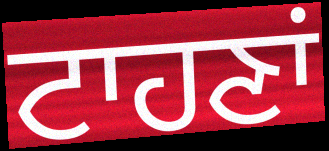
ਟਾਹਣਾਂ